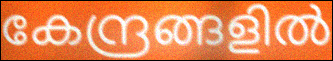
കേന്ദ്രങ്ങളിൽ